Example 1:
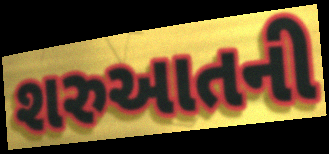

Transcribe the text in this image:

શરુઆતની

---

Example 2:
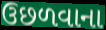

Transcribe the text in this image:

ઉછળવાના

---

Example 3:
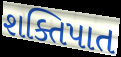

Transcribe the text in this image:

શક્તિપાત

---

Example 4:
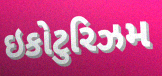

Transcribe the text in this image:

ઇકોટુરિઝમ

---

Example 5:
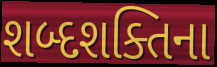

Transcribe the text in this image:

શબ્દશક્તિના